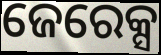
ଜେରେକ୍ସ